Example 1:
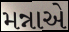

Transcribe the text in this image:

મન્નાએ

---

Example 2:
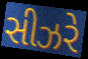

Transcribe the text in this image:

સીઝરે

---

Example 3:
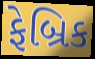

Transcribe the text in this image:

ફેબ્રિક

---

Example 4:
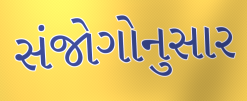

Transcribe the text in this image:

સંજોગોનુસાર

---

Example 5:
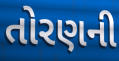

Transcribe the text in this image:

તોરણની